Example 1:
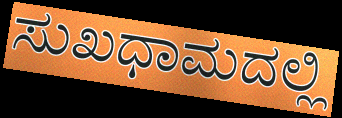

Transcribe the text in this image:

ಸುಖಧಾಮದಲ್ಲಿ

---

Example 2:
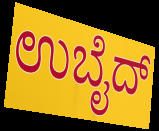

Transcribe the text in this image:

ಉಬೈದ್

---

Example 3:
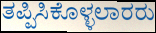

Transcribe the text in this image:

ತಪ್ಪಿಸಿಕೊಳ್ಳಲಾರರು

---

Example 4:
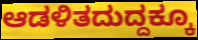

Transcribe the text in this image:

ಆಡಳಿತದುದ್ದಕ್ಕೂ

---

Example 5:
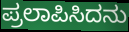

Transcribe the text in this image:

ಪ್ರಲಾಪಿಸಿದನು